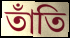
তাঁতি